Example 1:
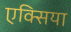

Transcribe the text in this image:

एक्सिया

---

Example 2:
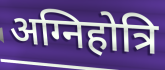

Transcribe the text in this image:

अग्निहोत्रि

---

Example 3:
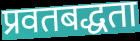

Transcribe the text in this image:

प्रवतबद्धता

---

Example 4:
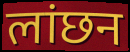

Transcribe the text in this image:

लांछन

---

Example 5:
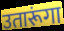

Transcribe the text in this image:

उतारूंगा